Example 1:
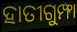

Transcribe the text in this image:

ହାତୀଗୁମ୍ଫା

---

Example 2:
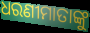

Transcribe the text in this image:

ଧରଣୀମାତାଙ୍କୁ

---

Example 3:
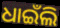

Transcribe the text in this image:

ଧାଇଁଲି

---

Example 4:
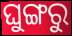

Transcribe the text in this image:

ଘୁଙ୍ଗରୁ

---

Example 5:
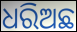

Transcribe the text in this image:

ଧରିଅଛ